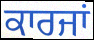
ਕਾਰਜਾਂ